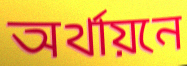
অর্থায়নে